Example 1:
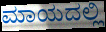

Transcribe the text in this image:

ಮಾಯದಲ್ಲಿ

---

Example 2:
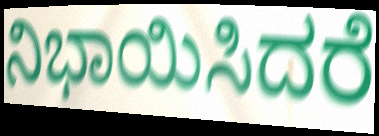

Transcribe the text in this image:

ನಿಭಾಯಿಸಿದರೆ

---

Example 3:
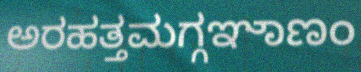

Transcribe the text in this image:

ಅರಹತ್ತಮಗ್ಗಞಾಣಂ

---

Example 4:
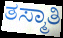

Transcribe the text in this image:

ತಸ್ಮಾತಿ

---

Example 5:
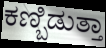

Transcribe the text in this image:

ಕಣ್ಬಿಡುತ್ತಾ